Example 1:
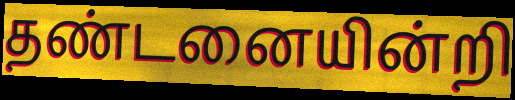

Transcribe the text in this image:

தண்டனையின்றி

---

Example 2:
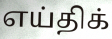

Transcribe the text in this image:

எய்திக்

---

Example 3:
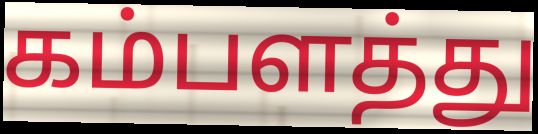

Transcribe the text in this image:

கம்பளத்து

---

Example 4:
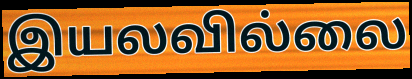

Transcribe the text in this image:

இயலவில்லை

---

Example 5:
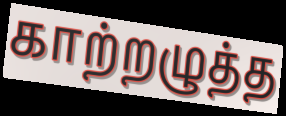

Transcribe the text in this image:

காற்றழுத்த